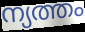
ന്യത്തം